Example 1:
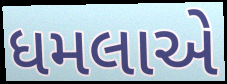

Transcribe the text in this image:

ધમલાએ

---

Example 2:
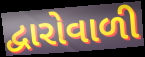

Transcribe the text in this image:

દ્વારોવાળી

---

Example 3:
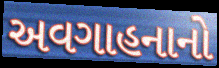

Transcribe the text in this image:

અવગાહનાનો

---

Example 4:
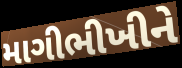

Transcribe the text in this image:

માગીભીખીને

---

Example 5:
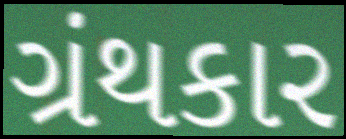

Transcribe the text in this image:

ગ્રંથકાર